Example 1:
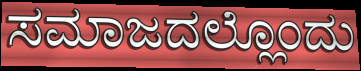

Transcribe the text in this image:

ಸಮಾಜದಲ್ಲೊಂದು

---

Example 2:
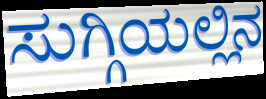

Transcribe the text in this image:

ಸುಗ್ಗಿಯಲ್ಲಿನ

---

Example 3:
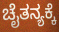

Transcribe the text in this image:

ಚೈತನ್ಯಕ್ಕೆ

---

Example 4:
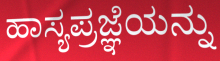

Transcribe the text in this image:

ಹಾಸ್ಯಪ್ರಜ್ಞೆಯನ್ನು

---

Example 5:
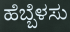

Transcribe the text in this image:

ಹೆಬ್ಬೆಳಸು